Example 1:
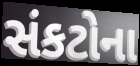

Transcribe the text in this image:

સંકટોના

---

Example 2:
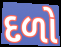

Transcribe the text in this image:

દળો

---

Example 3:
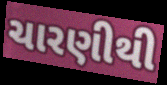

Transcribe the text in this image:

ચારણીથી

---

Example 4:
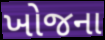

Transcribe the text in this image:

ખોજના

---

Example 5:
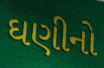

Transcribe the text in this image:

ઘણીનો